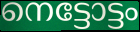
നെട്ടോട്ടം